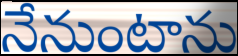
నేనుంటాను